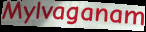
Mylvaganam